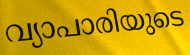
വ്യാപാരിയുടെ